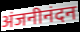
अंजनीनंदन